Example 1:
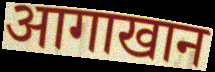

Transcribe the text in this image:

आगाखान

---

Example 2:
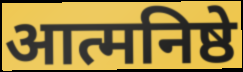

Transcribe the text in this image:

आत्मनिष्ठे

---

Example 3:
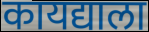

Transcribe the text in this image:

कायद्याला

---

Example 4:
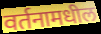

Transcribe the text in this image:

वर्तनामधील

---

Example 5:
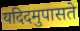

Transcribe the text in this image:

यदिदमुपासते